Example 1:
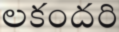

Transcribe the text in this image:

లకందరి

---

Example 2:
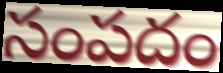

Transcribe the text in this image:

సంపదం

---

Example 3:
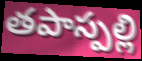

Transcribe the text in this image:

తపాస్పల్లి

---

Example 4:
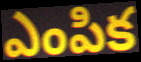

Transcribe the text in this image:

ఎంపిక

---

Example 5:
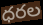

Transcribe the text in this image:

ధరల